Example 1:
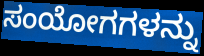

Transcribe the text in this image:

ಸಂಯೋಗಗಳನ್ನು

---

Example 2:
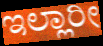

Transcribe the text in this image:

ಇಲ್ಲಾರೀ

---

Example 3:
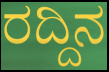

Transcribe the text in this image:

ರದ್ದಿನ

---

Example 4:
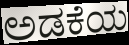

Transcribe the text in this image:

ಅಡಕೆಯ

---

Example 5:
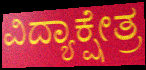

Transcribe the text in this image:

ವಿದ್ಯಾಕ್ಷೇತ್ರ